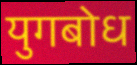
युगबोध